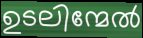
ഉടലിന്മേൽ